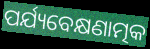
ପର୍ଯ୍ୟବେକ୍ଷଣାତ୍ମକ